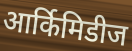
आर्किमिडीज